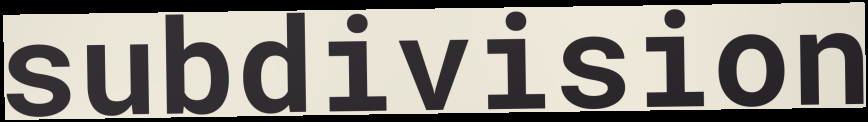
subdivision